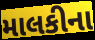
માલકીના